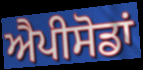
ਐਪੀਸੋਡਾਂ